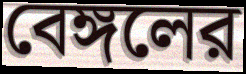
বেঙ্গলের